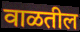
वाळतील